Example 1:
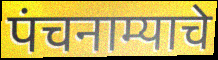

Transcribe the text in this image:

पंचनाम्याचे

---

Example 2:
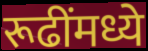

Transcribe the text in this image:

रूढींमध्ये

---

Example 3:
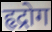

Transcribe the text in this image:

हृद्रोग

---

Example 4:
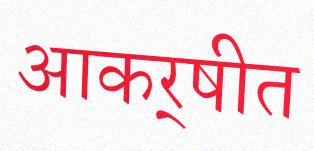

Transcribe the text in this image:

आकर्षीत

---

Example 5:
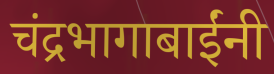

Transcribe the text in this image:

चंद्रभागाबाईंनी